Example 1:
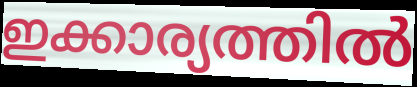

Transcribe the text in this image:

ഇക്കാര്യത്തിൽ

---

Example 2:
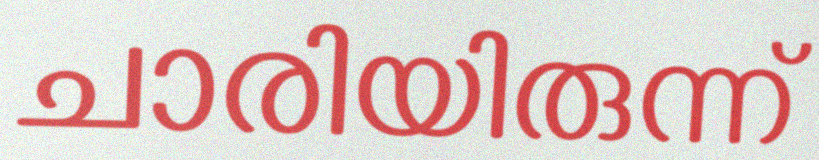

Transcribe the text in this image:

ചാരിയിരുന്ന്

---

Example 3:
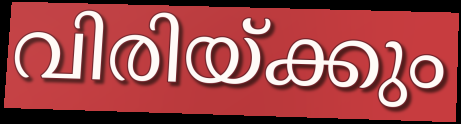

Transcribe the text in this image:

വിരിയ്ക്കും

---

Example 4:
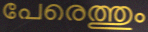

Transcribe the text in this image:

പേരെത്തും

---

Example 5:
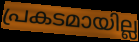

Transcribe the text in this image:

പ്രകടമായില്ല